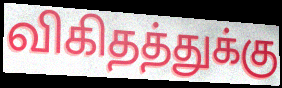
விகிதத்துக்கு